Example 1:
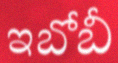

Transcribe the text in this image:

ఇబోబీ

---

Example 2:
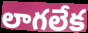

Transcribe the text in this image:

లాగలేక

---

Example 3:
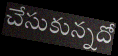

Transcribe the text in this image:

చేసుకున్నదో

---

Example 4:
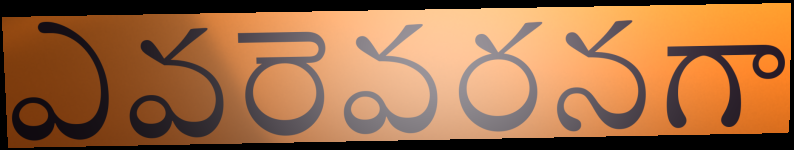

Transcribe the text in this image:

ఎవరెవరనగా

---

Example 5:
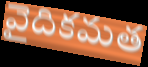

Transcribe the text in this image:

వైదికమత